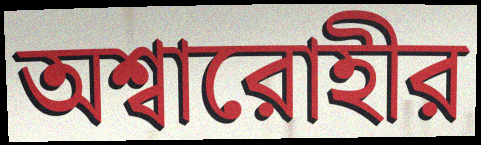
অশ্বারোহীর